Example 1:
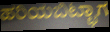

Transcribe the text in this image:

ಹರಿಯಬಿಟ್ಟಾಗ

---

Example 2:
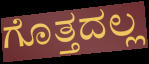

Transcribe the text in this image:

ಗೊತ್ತದಲ್ಲ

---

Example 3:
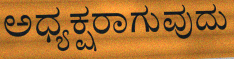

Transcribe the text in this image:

ಅಧ್ಯಕ್ಷರಾಗುವುದು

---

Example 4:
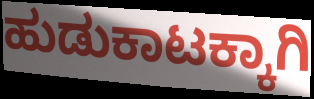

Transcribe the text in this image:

ಹುಡುಕಾಟಕ್ಕಾಗಿ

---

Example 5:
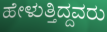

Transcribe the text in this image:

ಹೇಳುತ್ತಿದ್ದವರು